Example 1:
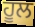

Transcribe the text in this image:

ਹੂਲ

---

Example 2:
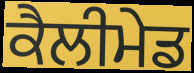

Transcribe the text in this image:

ਕੈਲੀਮੇਡ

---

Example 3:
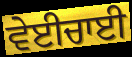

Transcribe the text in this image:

ਵੇਈਚਾਈ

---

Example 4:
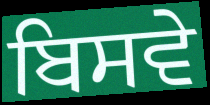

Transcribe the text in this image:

ਬਿਸਵੇ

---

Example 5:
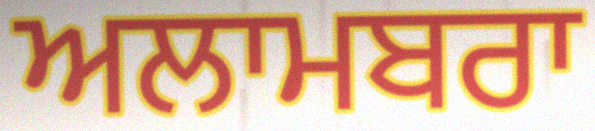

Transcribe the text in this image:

ਅਲਾਮਬਰਾ